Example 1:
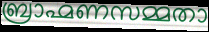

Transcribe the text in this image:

ബ്രാഹ്മണസമ്മതാ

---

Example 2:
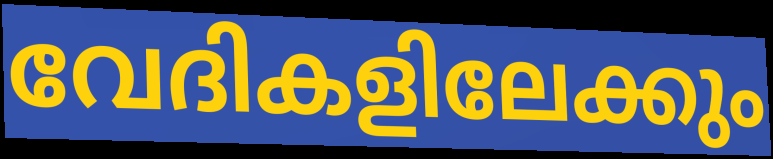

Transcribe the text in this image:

വേദികളിലേക്കും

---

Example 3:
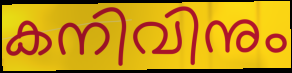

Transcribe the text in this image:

കനിവിനും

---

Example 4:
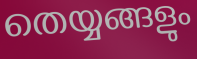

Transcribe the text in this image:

തെയ്യങ്ങളും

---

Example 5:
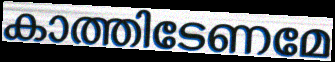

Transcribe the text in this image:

കാത്തിടേണമേ